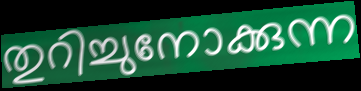
തുറിച്ചുനോക്കുന്ന